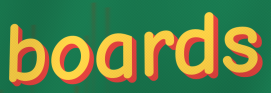
boards